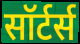
सॉर्टर्स